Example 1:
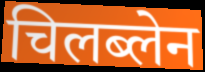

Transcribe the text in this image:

चिलब्लेन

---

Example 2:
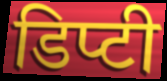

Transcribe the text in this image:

डिप्‍टी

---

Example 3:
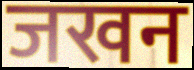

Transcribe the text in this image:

जखन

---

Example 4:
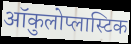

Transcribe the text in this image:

ऑकुलोप्लास्टिक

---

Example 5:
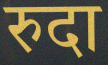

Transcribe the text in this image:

रुदा